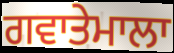
ਗਵਾਤੇਮਾਲਾ